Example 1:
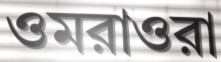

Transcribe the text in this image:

ওমরাওরা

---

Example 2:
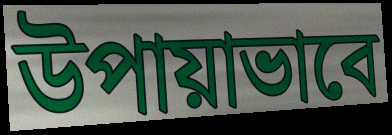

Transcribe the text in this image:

উপায়াভাবে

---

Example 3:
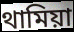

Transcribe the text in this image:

থামিয়া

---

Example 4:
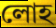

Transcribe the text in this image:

লোহ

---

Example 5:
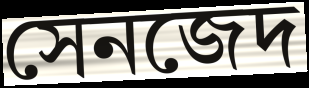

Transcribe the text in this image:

সেনজেদ